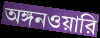
অঙ্গনওয়ারি